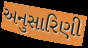
અનુસારિણી